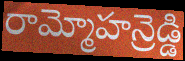
రామ్మోహన్రెడ్డి